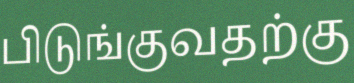
பிடுங்குவதற்கு